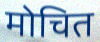
मोचित